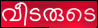
വീടരുടെ